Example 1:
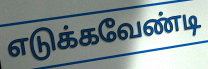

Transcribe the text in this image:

எடுக்கவேண்டி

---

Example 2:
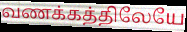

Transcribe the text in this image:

வணக்கத்திலேயே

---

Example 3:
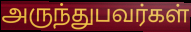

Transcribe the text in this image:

அருந்துபவர்கள்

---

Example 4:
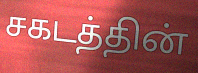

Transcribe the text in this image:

சகடத்தின்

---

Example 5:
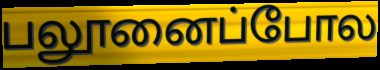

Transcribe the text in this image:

பலூனைப்போல